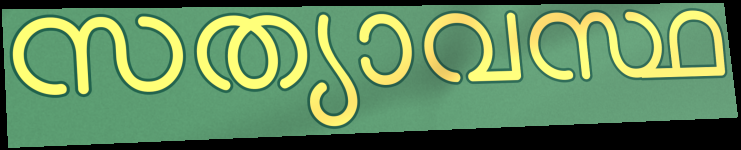
സത്യാവസ്ഥ